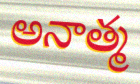
అనాత్మ